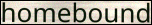
homebound